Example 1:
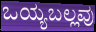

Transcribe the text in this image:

ಒಯ್ಯಬಲ್ಲವು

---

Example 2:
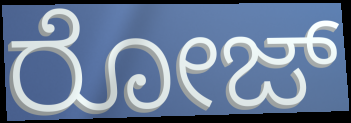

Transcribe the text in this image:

ರೋಜ್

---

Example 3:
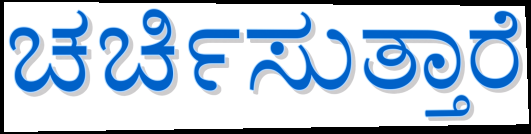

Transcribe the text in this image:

ಚರ್ಚಿಸುತ್ತಾರೆ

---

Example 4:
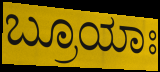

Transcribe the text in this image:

ಬ್ರೂಯಾಃ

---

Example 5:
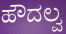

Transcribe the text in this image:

ಹೌದಲ್ವ